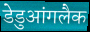
डेडुआंगलैक